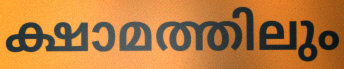
ക്ഷാമത്തിലും